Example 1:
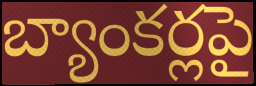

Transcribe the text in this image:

బ్యాంకర్లపై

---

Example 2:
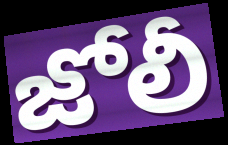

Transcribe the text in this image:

జోలీ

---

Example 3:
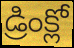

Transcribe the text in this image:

డ్రింక్లో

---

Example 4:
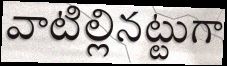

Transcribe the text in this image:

వాటిల్లినట్టుగా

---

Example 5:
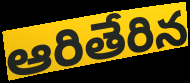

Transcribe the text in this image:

ఆరితేరిన